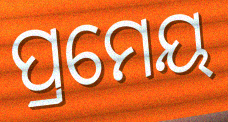
ପ୍ରମେୟ